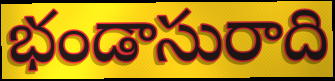
భండాసురాది